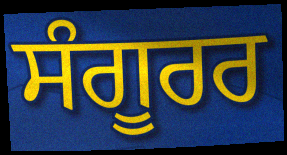
ਸੰਗੂਰਰ